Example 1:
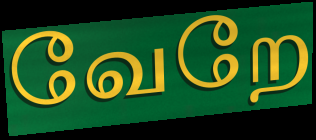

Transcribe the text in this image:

வேறே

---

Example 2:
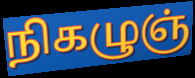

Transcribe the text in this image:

நிகழுஞ்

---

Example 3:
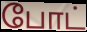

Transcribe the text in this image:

போட்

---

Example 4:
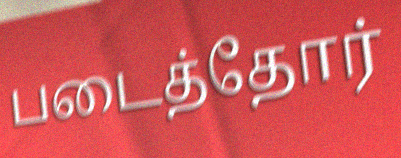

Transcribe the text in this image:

படைத்தோர்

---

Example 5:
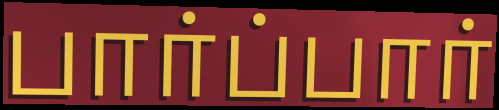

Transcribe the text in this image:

பார்ப்பார்